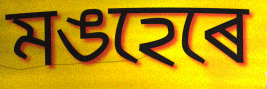
মঙহেৰে